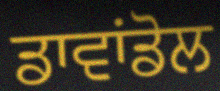
ਡਾਵਾਂਡੋਲ